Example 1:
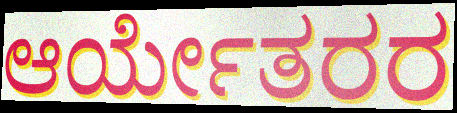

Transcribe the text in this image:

ಆರ್ಯೇತರರ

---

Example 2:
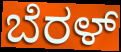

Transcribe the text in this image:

ಬೆರಳ್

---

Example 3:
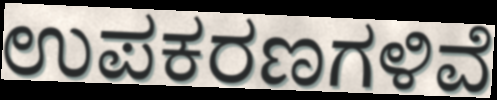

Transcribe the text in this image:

ಉಪಕರಣಗಳಿವೆ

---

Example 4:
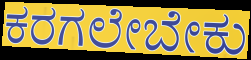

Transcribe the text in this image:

ಕರಗಲೇಬೇಕು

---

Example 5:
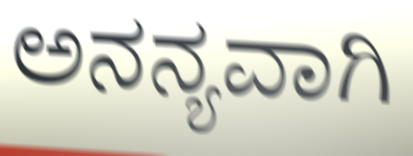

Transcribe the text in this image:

ಅನನ್ಯವಾಗಿ